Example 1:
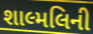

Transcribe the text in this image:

શાલ્મલિની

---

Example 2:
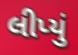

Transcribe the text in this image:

લીપ્યું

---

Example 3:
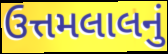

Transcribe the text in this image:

ઉત્તમલાલનું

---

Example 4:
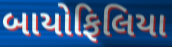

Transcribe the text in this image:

બાયોફિલિયા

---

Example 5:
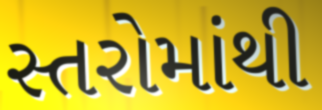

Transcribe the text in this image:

સ્તરોમાંથી